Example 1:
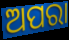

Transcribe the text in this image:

ଅପରା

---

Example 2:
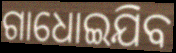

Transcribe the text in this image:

ଗାଧୋଇଯିବ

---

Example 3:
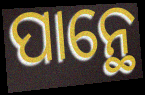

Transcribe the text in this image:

ପାନ୍ଥେ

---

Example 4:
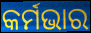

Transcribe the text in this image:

କର୍ମଭାର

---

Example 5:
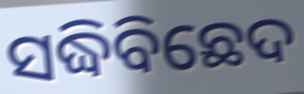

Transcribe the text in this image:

ସଦ୍ଧିବିଛେଦ